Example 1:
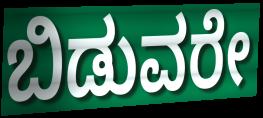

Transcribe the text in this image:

ಬಿಡುವರೇ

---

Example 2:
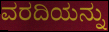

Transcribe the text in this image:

ವರದಿಯನ್ನು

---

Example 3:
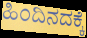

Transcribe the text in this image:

ಹಿಂದಿನದಕ್ಕೆ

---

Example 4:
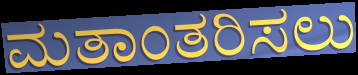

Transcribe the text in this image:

ಮತಾಂತರಿಸಲು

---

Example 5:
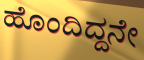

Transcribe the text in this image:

ಹೊಂದಿದ್ದನೇ